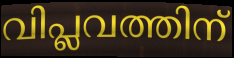
വിപ്ലവത്തിന്